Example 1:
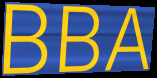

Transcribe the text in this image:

BBA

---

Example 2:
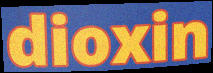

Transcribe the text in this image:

dioxin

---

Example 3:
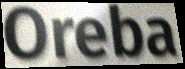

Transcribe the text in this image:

Oreba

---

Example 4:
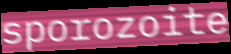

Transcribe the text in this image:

sporozoite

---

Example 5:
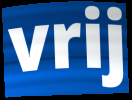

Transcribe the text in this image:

vrij